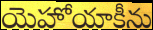
యెహోయాకీను